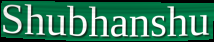
Shubhanshu